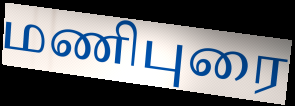
மணிபுரை